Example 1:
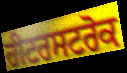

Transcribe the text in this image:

ਹੀਟਰਸਟਰੋਕ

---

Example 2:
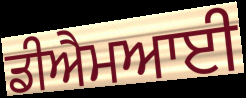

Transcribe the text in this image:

ਡੀਐਮਆਈ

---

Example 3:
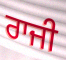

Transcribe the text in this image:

ਰਾਜੀ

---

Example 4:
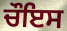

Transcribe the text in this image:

ਚੌਇਸ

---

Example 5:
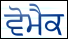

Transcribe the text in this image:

ਵੋਮੈਕ